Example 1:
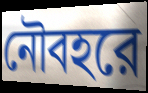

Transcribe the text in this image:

নৌবহরে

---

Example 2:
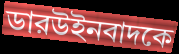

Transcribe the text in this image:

ডারউইনবাদকে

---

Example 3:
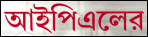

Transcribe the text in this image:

আইপিএলের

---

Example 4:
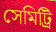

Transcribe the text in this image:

সেমিট্রি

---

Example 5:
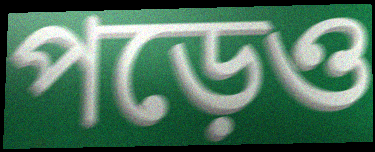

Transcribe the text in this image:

পড়েও